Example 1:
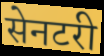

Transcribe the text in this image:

सेनटरी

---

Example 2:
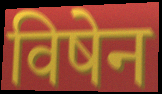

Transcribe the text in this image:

विषेन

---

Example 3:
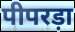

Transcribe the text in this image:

पीपरड़ा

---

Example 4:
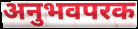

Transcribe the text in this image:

अनुभवपरक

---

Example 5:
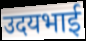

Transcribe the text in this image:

उदयभाई